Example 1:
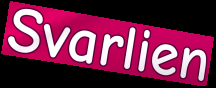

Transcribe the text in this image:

Svarlien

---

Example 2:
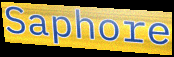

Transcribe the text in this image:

Saphore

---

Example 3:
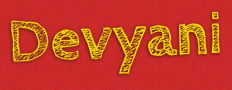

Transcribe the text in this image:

Devyani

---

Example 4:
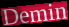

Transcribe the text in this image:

Demin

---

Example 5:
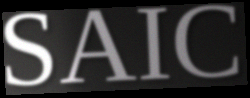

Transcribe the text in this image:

SAIC